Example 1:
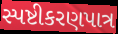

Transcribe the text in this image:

સ્પષ્ટીકરણપાત્ર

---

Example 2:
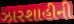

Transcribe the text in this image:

ઝારશાહીની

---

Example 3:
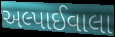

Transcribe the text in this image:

અલ્પાઈવાલા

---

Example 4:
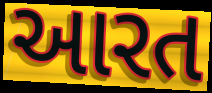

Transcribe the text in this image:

આરત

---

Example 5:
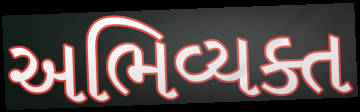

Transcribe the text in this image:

અભિવ્યક્ત